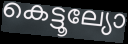
കെട്ടൂല്യോ